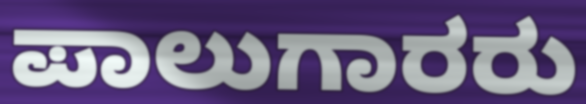
ಪಾಲುಗಾರರು